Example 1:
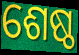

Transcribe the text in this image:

ଶେଷ୍ଠ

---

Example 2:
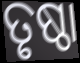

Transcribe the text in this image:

ତୃଷ୍ଠା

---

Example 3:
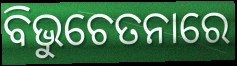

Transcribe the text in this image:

ବିଭୁଚେତନାରେ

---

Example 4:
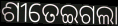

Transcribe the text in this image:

ଶୀତେଇଗଲା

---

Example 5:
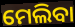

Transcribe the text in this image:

ମେଲିବା